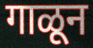
गाळून